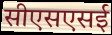
सीएसएसई